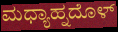
ಮಧ್ಯಾಹ್ನದೊಳ್